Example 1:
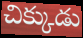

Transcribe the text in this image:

చిక్కుడు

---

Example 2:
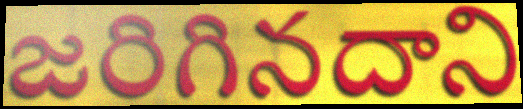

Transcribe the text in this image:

జరిగినదాని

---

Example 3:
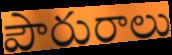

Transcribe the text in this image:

పౌరురాలు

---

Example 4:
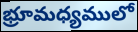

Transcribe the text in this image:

భ్రూమధ్యములో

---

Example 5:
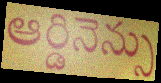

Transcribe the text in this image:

ఆర్డినెన్సు